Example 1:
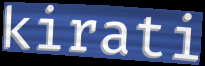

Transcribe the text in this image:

kirati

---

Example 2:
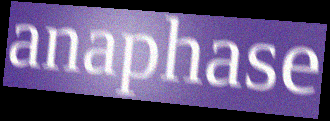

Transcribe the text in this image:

anaphase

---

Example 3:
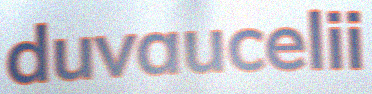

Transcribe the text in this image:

duvaucelii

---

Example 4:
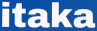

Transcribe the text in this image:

itaka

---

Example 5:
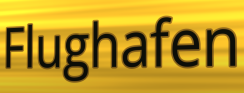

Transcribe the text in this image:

Flughafen